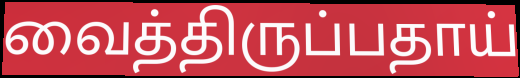
வைத்திருப்பதாய்